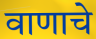
वाणाचे